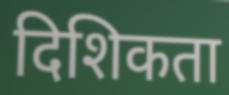
दिशिकता